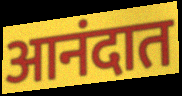
आनंदात